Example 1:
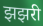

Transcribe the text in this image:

झझरी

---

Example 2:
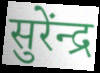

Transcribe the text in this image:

सुरेंन्द्र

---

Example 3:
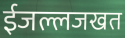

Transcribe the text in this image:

ईजल्लजखत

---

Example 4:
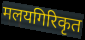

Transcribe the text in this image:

मलयगिरिकृत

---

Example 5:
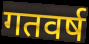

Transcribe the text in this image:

गतवर्ष